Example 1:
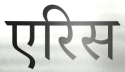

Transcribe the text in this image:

एरिस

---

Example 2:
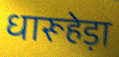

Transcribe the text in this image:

धारूहेड़ा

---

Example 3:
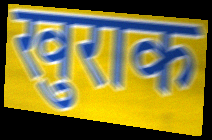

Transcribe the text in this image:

खुराक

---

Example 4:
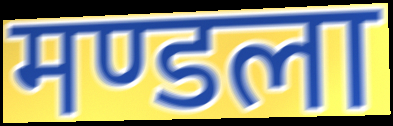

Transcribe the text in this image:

मण्डला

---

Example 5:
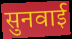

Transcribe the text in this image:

सुनवाई